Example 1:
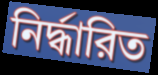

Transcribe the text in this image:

নির্দ্ধারিত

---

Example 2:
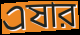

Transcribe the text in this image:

এষার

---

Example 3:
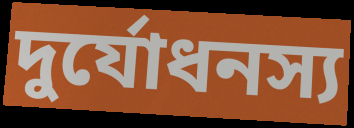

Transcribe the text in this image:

দুর্যোধনস্য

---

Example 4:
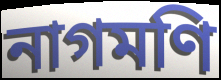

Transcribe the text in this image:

নাগমণি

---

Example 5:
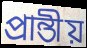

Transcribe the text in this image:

প্রান্তীয়